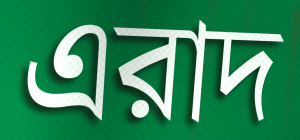
এরাদ